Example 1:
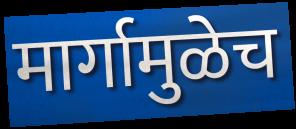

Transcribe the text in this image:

मार्गामुळेच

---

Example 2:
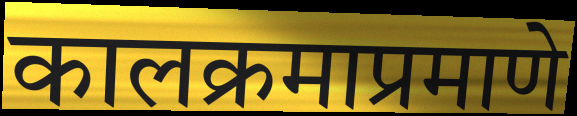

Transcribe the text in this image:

कालक्रमाप्रमाणे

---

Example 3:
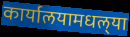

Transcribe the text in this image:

कार्यालयामधल्या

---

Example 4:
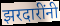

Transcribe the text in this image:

झरदारींनी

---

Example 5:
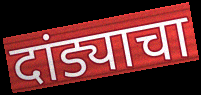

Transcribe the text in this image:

दांड्याचा